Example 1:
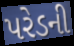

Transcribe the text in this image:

પરેડની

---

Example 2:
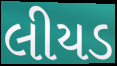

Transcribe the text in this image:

લીયડ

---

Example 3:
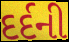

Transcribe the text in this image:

દર્દની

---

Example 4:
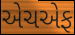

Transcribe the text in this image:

એચએફ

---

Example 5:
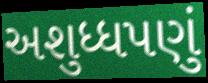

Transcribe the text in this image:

અશુધ્ધપણું